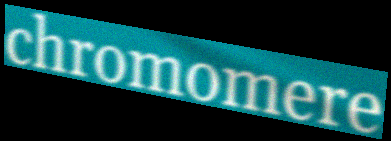
chromomere